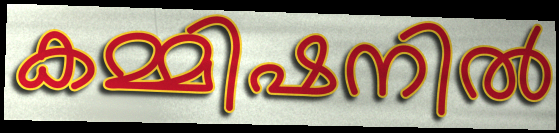
കമ്മിഷനിൽ